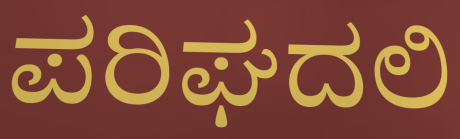
ಪರಿಘದಲಿ